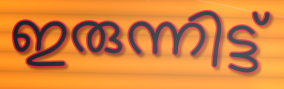
ഇരുന്നിട്ട്